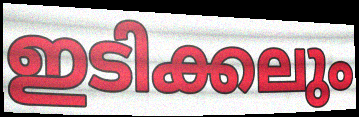
ഇടിക്കലും